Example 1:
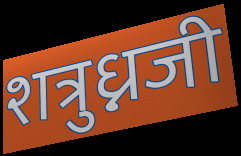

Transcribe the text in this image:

शत्रुध्नजी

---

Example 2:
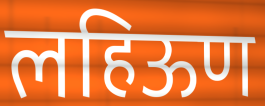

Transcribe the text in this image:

लहिऊण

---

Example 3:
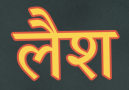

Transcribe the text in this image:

लैश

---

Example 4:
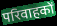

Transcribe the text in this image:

परिवाहकों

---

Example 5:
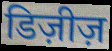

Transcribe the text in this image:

डिज़ीज़